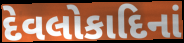
દેવલોકાદિનાં